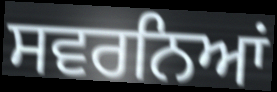
ਸਵਰਨਿਆਂ